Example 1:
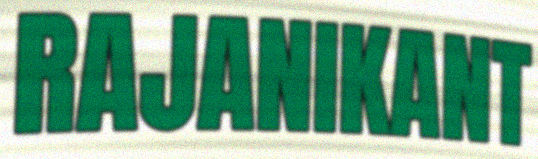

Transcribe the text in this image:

RAJANIKANT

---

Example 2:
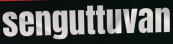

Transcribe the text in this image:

senguttuvan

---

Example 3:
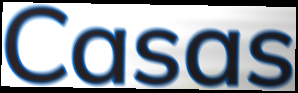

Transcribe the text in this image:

Casas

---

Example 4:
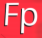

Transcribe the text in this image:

Fp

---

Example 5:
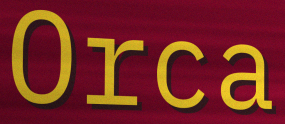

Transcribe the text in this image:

Orca